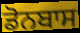
ਡੋਨਬਾਸ